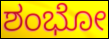
ಶಂಭೋ